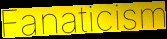
Fanaticism